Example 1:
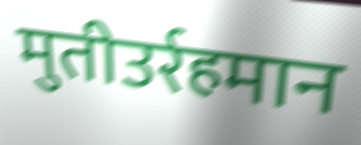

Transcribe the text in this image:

मुतीउर्रहमान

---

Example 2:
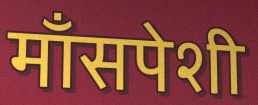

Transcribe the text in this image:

माँसपेशी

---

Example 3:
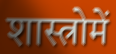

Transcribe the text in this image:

शास्त्रोमें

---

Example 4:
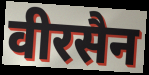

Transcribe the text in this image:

वीरसैन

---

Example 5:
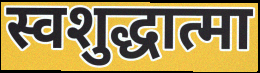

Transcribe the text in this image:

स्वशुद्धात्मा